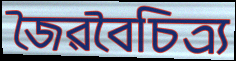
জৈৱবৈচিত্ৰ্য